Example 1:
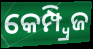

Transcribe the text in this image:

କେମ୍ପ୍ୱ୍ରିଜ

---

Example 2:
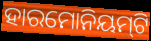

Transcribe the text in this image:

ହାରମୋନିୟମ୍‍ଟି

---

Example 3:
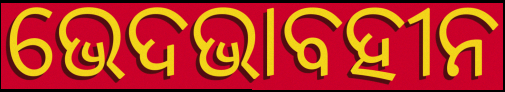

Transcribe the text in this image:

ଭେଦଭାବହୀନ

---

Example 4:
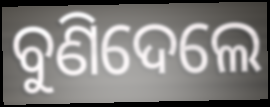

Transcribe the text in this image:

ବୁଣିଦେଲେ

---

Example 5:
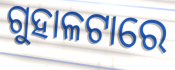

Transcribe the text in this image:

ଗୁହାଳଟାରେ